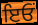
ਇਓਂ